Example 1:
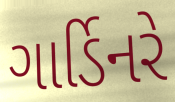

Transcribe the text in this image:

ગાર્ડિનરે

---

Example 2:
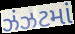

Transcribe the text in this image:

ઝંઝટમાં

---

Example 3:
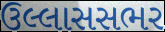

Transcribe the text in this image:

ઉલ્લાસસભર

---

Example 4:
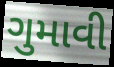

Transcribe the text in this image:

ગુમાવી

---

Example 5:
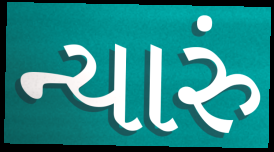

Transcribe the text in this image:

ન્યારું